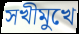
সখীমুখে